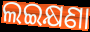
ଲଇକ୍ଷଣା